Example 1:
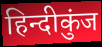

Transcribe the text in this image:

हिन्दीकुंज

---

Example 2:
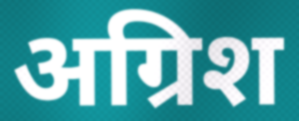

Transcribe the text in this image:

अग्रिश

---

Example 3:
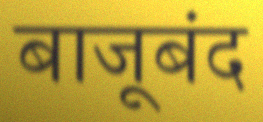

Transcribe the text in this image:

बाजूबंद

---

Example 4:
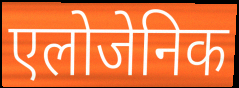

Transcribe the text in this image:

एलोजेनिक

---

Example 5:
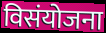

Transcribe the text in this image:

विसंयोजना